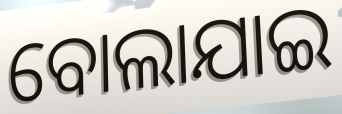
ବୋଲାଯାଇ